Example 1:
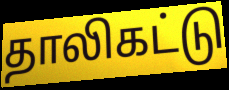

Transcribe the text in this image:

தாலிகட்டு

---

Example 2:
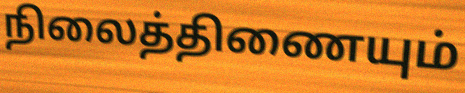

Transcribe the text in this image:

நிலைத்திணையும்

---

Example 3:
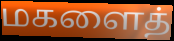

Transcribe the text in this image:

மகளைத்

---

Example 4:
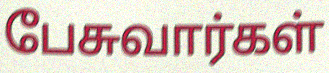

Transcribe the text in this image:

பேசுவார்கள்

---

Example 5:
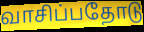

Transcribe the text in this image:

வாசிப்பதோடு